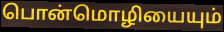
பொன்மொழியையும்